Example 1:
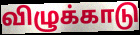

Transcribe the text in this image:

விழுக்காடு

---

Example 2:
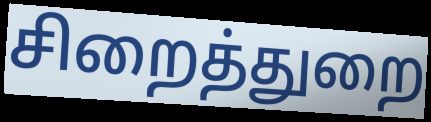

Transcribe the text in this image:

சிறைத்துறை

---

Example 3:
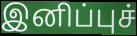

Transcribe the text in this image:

இனிப்புச்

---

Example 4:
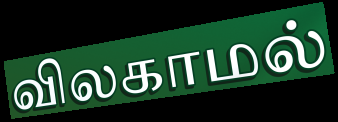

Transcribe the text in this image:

விலகாமல்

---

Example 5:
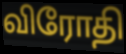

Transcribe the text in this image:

விரோதி